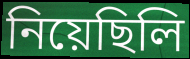
নিয়েছিলি